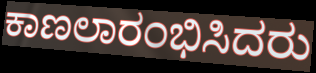
ಕಾಣಲಾರಂಭಿಸಿದರು